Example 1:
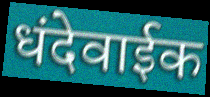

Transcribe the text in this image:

धंदेवाईक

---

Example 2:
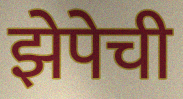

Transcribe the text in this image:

झेपेची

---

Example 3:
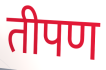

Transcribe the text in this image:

तीपण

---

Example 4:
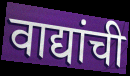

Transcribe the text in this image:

वाद्यांची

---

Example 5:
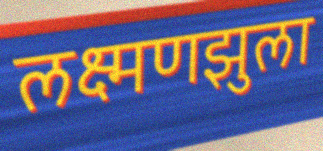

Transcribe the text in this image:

लक्ष्मणझुला